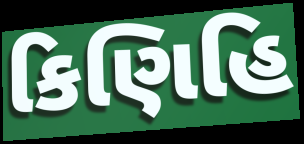
કિણિહિ